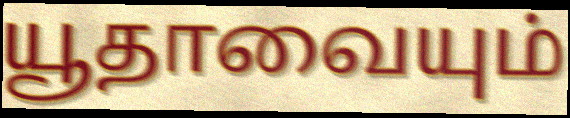
யூதாவையும்